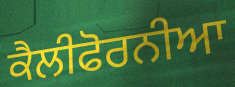
ਕੈਲੀਫੋਰਨੀਆ